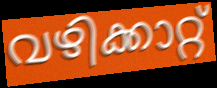
വഴിക്കാറ്റ്